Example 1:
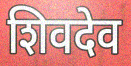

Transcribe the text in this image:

शिवदेव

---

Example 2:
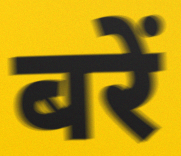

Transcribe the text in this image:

बरें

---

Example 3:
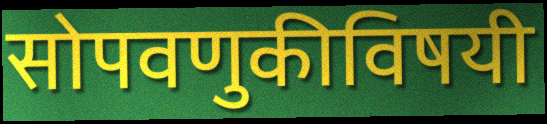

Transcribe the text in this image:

सोपवणुकीविषयी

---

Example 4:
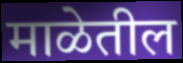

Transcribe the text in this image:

माळेतील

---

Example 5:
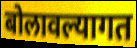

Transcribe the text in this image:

बोलावल्यागत